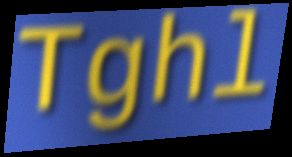
Tghl